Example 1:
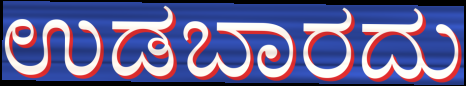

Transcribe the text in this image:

ಉಡಬಾರದು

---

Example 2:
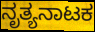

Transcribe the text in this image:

ನೃತ್ಯನಾಟಕ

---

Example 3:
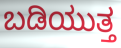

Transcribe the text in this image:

ಬಡಿಯುತ್ತ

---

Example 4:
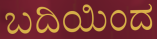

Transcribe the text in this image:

ಬದಿಯಿಂದ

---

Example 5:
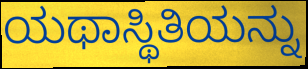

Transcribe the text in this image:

ಯಥಾಸ್ಥಿತಿಯನ್ನು